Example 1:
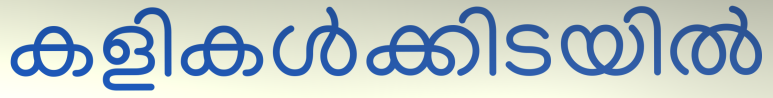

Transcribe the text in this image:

കളികൾക്കിടയിൽ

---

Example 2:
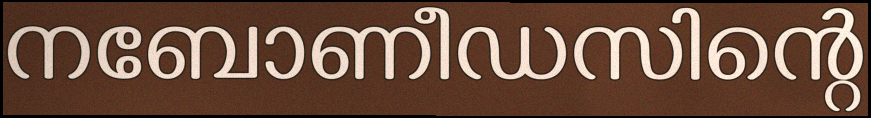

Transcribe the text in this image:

നബോണീഡസിന്റെ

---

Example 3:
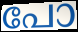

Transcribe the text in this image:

പോ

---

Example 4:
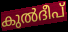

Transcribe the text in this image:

കുൽദീപ്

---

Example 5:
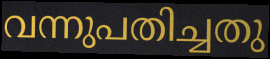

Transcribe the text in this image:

വന്നുപതിച്ചതു